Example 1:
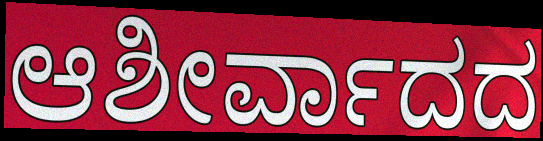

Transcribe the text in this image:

ಆಶೀರ್ವಾದದ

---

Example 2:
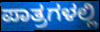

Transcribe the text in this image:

ಪಾತ್ರಗಳಲ್ಲಿ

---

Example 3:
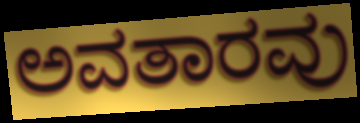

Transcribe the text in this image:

ಅವತಾರವು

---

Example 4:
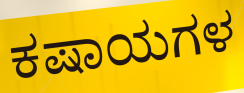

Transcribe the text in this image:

ಕಷಾಯಗಳ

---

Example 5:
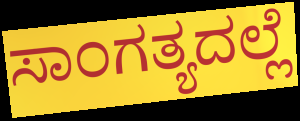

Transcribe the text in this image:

ಸಾಂಗತ್ಯದಲ್ಲೆ